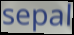
sepal